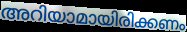
അറിയാമായിരിക്കണം